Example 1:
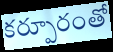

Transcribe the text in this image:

కర్పూరంతో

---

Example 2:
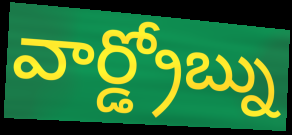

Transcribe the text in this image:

వార్డ్రోబ్ను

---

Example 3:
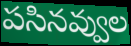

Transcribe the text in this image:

పసినవ్వుల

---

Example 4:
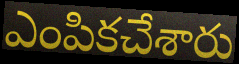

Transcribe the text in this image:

ఎంపికచేశారు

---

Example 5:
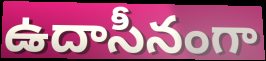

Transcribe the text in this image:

ఉదాసీనంగా